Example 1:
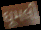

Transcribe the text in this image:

ઘૂમલી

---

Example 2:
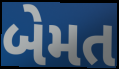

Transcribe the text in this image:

બેમત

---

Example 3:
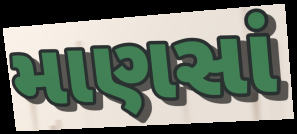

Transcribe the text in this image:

માણસાં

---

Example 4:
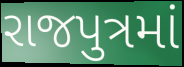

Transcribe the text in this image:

રાજપુત્રમાં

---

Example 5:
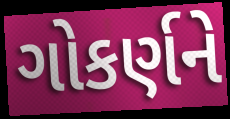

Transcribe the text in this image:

ગોકર્ણને